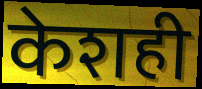
केशही